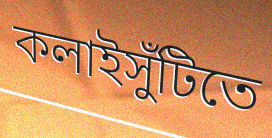
কলাইসুঁটিতে